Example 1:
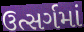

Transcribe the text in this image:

ઉત્સર્ગમાં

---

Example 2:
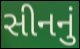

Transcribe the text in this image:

સીનનું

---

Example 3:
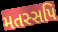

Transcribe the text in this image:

મતસ્સપિ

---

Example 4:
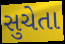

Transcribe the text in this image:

સુચેતા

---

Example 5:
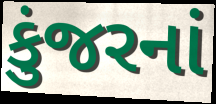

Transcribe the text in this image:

કુંજરનાં